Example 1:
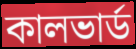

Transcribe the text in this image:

কালভার্ড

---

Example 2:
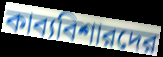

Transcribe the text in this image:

কাব্যবিশারদের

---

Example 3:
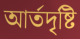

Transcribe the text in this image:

আর্তদৃষ্টি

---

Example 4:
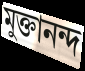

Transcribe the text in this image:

মুক্তানন্দ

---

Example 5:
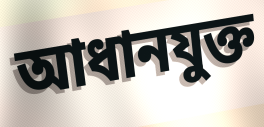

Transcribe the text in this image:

আধানযুক্ত